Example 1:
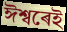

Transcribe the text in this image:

ঈশ্বৰেই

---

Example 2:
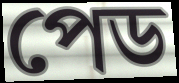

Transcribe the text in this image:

পেড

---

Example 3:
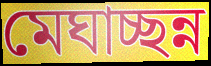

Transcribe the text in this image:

মেঘাচ্ছন্ন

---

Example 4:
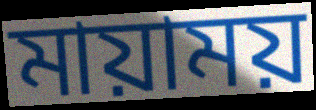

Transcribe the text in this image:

মায়াময়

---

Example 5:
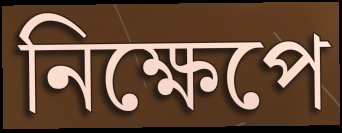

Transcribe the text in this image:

নিক্ষেপে